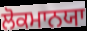
ਲੋਕਮਾਨਯਾ